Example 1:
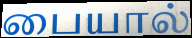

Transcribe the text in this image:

பையால்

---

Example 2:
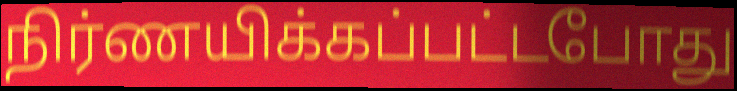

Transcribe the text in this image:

நிர்ணயிக்கப்பட்டபோது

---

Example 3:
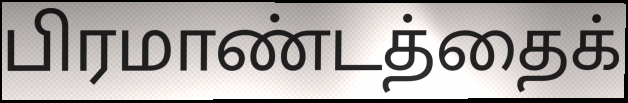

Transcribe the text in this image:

பிரமாண்டத்தைக்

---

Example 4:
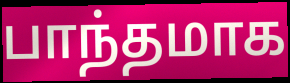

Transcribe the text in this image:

பாந்தமாக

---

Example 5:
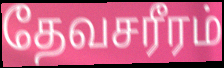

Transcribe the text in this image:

தேவசரீரம்